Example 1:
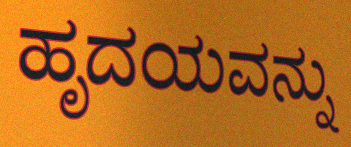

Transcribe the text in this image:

ಹೃದಯವನ್ನು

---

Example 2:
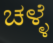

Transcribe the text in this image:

ಚಳ್ಳೆ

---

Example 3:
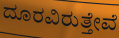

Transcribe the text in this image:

ದೂರವಿರುತ್ತೇವೆ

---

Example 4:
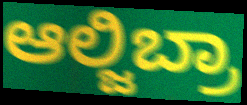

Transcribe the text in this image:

ಆಲ್ಜಿಬ್ರಾ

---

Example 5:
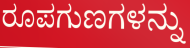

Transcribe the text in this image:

ರೂಪಗುಣಗಳನ್ನು